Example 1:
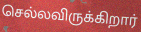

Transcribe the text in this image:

செல்லவிருக்கிறார்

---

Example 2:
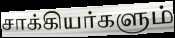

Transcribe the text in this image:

சாக்கியர்களும்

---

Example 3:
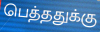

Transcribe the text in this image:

பெத்ததுக்கு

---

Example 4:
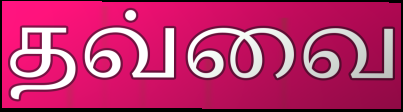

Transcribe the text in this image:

தவ்வை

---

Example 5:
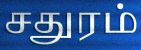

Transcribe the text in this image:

சதுரம்